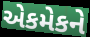
એકમેકને